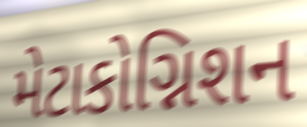
મેટાકોગ્નિશન